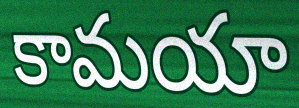
కామయా